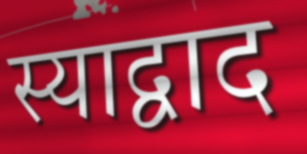
स्याद्वाद